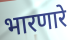
भारणारे